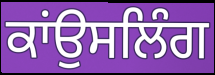
ਕਾਂਉਸਲਿੰਗ